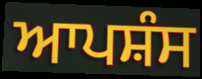
ਆਪਸ਼ੰਸ